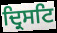
ਦ੍ਰਿਸਟਿ